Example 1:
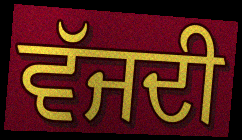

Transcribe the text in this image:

ਵੱਜਦੀ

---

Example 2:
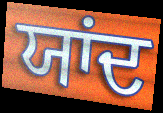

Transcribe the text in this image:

ਯਾਂਦ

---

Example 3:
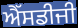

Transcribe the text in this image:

ਐੱਸਡੀਜੀ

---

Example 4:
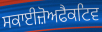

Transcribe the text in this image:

ਸਕਾਈਜ਼ੋਅਫੈਕਟਿਵ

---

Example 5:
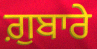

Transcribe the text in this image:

ਗ਼ੁਬਾਰੇ